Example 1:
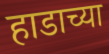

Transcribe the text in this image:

हाडाच्या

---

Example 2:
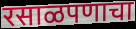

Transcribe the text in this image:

रसाळपणाचा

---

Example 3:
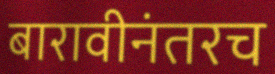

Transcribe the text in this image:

बारावीनंतरच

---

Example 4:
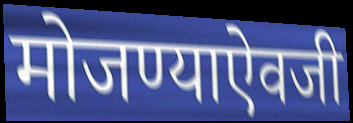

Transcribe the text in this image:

मोजण्याऐवजी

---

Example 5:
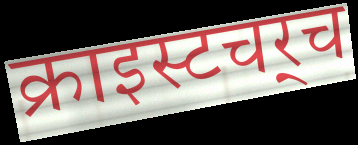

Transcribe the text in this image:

क्राइस्टचर्च